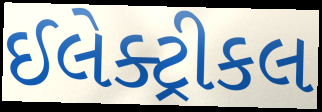
ઈલેક્ટ્રીકલ